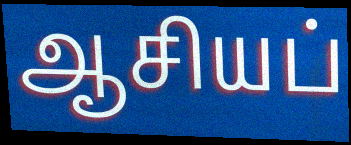
ஆசியப்